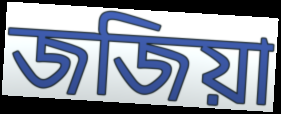
জজিয়া